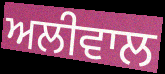
ਅਲੀਵਾਲ